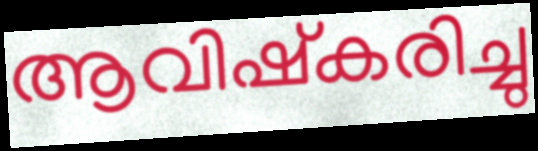
ആവിഷ്കരിച്ചു